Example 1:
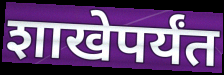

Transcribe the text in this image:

शाखेपर्यंत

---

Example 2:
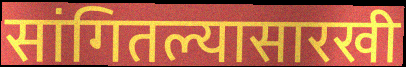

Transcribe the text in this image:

सांगितल्यासारखी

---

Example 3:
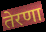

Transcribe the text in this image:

तेरणा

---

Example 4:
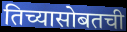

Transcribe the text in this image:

तिच्यासोबतची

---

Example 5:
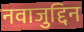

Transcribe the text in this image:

नवाजुद्दिन